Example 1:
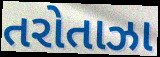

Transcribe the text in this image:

તરોતાઝા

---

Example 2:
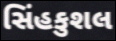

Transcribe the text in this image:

સિંહકુશલ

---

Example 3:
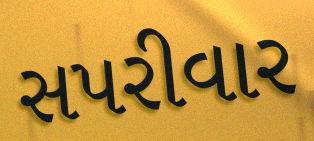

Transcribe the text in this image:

સપરીવાર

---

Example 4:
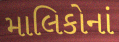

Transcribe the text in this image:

માલિકોનાં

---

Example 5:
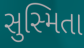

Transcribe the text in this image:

સુસ્મિતા